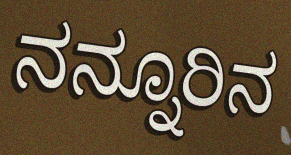
ನನ್ನೂರಿನ